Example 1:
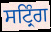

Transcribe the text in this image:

ਸਟ੍ਰਿੰਗ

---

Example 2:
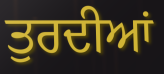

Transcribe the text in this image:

ਤੁਰਦੀਆਂ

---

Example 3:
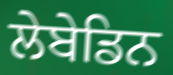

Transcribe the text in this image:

ਲੇਬੇਡਿਨ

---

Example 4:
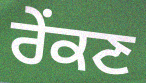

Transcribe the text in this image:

ਰੇੰਕਣ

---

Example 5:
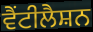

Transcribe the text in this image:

ਵੈਂਟੀਲੈਸ਼ਨ